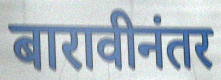
बारावीनंतर